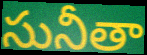
సునీతా